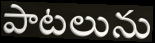
పాటలును